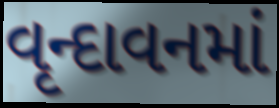
વૃન્દાવનમાં